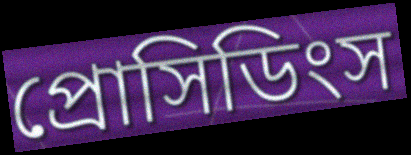
প্রোসিডিংস